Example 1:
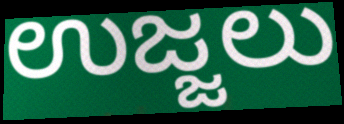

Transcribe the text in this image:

ಉಜ್ಜಲು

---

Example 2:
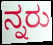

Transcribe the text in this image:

ನ್ನರು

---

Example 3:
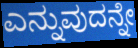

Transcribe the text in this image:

ಎನ್ನುವುದನ್ನೇ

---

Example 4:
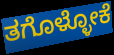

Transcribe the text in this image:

ತಗೊಳ್ಳೋಕೆ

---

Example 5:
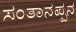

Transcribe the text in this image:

ಸಂತಾನಪ್ಪನ